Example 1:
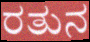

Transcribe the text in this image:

ರತುನ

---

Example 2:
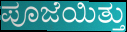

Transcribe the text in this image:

ಪೂಜೆಯಿತ್ತು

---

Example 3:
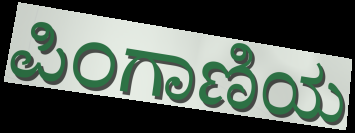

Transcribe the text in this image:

ಪಿಂಗಾಣಿಯ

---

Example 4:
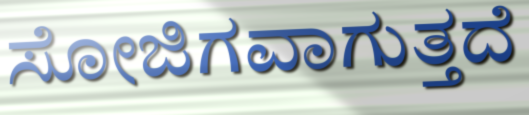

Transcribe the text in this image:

ಸೋಜಿಗವಾಗುತ್ತದೆ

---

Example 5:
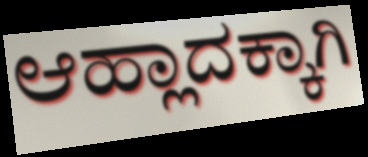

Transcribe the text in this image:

ಆಹ್ಲಾದಕ್ಕಾಗಿ